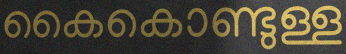
കൈകൊണ്ടുള്ള